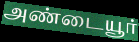
அண்டையூர்